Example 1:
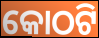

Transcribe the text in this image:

କୋଠଟି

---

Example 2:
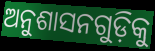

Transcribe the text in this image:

ଅନୁଶାସନଗୁଡ଼ିକୁ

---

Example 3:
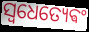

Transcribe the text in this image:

ସ୍ଵଧେତ୍ଯେଵଂ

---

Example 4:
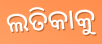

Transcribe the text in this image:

ଲତିକାକୁ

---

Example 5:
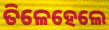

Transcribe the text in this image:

ତିଳେହେଲେ